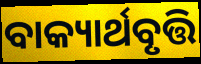
ବାକ୍ୟାର୍ଥବୃତ୍ତି